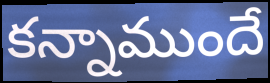
కన్నాముందే